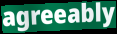
agreeably